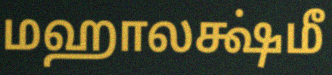
மஹாலக்ஷ்மீ